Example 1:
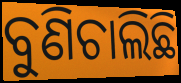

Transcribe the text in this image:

ବୁଣିଚାଲିଛି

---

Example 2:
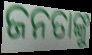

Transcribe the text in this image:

ଜନତାଙ୍କୁ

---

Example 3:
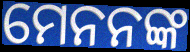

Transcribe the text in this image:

ମେନନଙ୍କ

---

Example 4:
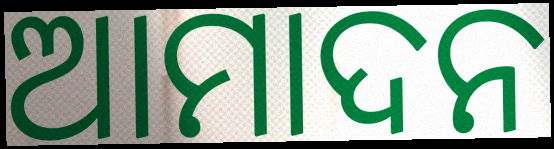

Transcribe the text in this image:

ଆମାଦନ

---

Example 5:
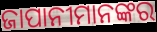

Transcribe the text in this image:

ଜାପାନୀମାନଙ୍କର